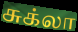
சுக்லா